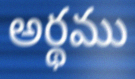
అర్థము